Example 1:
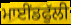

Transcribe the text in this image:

ਮਾਈਂਡਫੁੱਲੀ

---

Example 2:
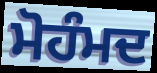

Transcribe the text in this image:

ਮੋਹੰਮਦ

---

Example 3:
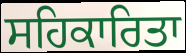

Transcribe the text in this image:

ਸਹਿਕਾਰਿਤਾ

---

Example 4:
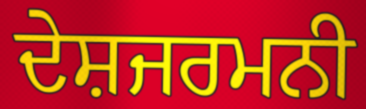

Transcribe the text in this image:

ਦੇਸ਼ਜਰਮਨੀ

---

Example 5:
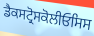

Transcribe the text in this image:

ਡੈਕਸਟ੍ਰੋਸਕੋਲੀਓਸਿਸ